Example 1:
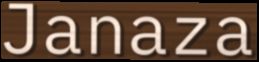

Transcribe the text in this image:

Janaza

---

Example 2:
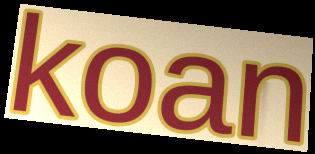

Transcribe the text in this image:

koan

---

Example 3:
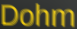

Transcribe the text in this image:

Dohm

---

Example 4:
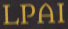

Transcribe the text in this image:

LPAI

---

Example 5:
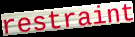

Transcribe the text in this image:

restraint